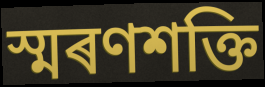
স্মৰণশক্তি